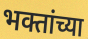
भक्तांच्या